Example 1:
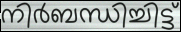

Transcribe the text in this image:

നിർബന്ധിച്ചിട്ട്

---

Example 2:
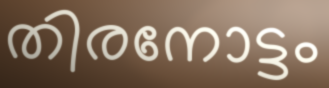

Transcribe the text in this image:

തിരനോട്ടം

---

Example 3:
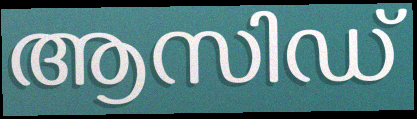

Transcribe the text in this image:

ആസിഡ്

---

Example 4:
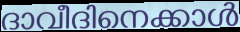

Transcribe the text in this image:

ദാവീദിനെക്കാൾ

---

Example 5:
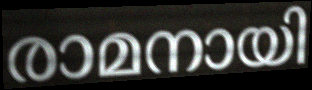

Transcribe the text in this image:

രാമനായി